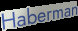
Haberman